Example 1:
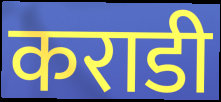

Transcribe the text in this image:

कराडी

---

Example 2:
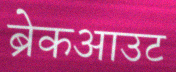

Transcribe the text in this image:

ब्रेकआउट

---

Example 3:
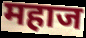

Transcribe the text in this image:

महाज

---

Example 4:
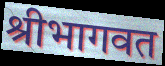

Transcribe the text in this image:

श्रीभागवत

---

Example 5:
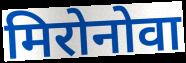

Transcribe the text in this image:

मिरोनोवा